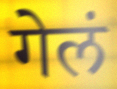
गेलं